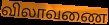
விலாவணை